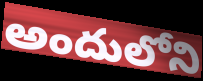
అందులోని